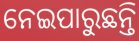
ନେଇପାରୁଛନ୍ତି